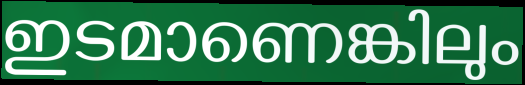
ഇടമാണെങ്കിലും